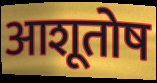
आशूतोष